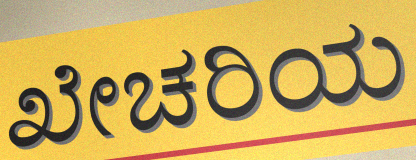
ಖೇಚರಿಯ